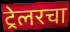
ट्रेलरचा